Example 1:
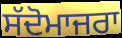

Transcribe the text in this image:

ਸੱਦੋਮਾਜਰਾ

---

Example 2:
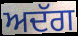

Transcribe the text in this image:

ਅਦੱਗ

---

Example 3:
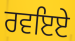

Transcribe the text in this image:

ਰਵਇਏ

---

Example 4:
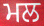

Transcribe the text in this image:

ਮਲ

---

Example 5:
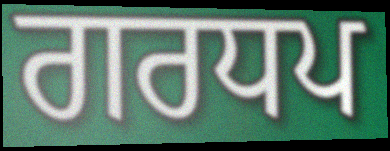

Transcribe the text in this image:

ਗਰਧਪ